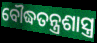
ବୌଦ୍ଧତନ୍ତ୍ରଶାସ୍ତ୍ର